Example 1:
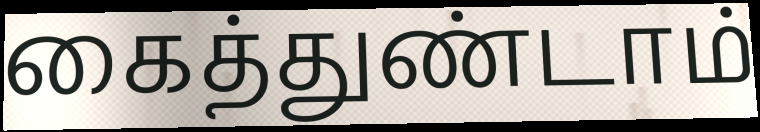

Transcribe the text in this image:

கைத்துண்டாம்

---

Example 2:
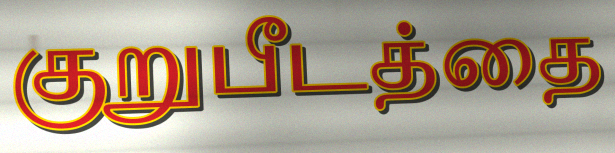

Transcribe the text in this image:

குறுபீடத்தை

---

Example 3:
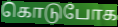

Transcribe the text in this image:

கொடுபோக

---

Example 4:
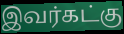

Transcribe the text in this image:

இவர்கட்கு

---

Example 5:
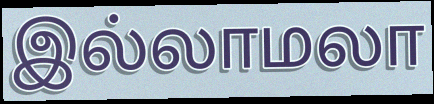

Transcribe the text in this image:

இல்லாமலா